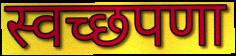
स्वच्छपणा